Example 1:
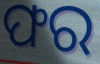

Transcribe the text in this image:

ଫର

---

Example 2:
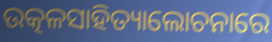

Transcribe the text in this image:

ଉତ୍କଳସାହିତ୍ୟାଲୋଚନାରେ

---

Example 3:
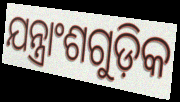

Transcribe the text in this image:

ଯନ୍ତ୍ରାଂଶଗୁଡ଼ିକ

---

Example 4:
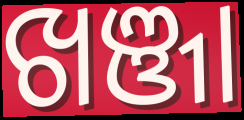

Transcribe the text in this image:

ଖଞ୍ଜା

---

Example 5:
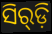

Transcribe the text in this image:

ସିର୍‌ଡ଼ି